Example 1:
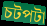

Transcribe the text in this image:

চটপটা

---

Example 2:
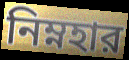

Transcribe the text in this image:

নিম্নহার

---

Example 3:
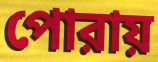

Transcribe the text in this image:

পোরায়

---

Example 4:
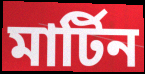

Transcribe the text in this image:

মার্টিন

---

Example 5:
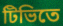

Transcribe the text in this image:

টিভিতে